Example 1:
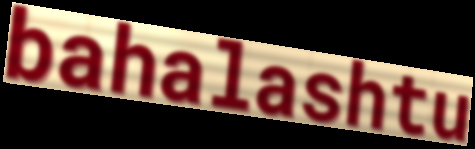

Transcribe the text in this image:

bahalashtu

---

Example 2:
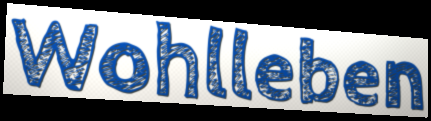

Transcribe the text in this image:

Wohlleben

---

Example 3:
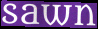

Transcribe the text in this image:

sawn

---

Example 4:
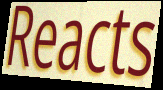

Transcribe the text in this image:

Reacts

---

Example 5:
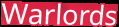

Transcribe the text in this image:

Warlords